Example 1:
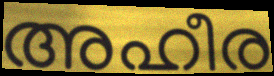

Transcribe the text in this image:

അഹീര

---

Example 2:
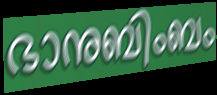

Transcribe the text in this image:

ഭാനുബിംബം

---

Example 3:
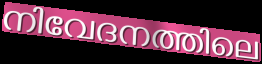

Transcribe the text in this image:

നിവേദനത്തിലെ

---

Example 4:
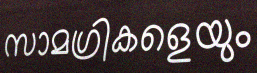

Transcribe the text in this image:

സാമഗ്രികളെയും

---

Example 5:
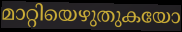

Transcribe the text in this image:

മാറ്റിയെഴുതുകയോ